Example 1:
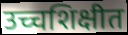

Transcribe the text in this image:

उच्चशिक्षीत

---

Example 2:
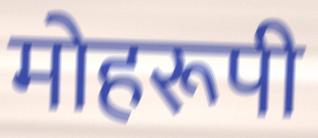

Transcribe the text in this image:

मोहरूपी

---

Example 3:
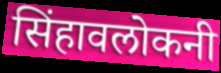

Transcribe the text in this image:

सिंहावलोकनी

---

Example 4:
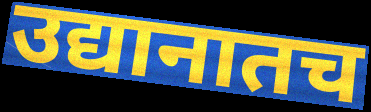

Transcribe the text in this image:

उद्यानातच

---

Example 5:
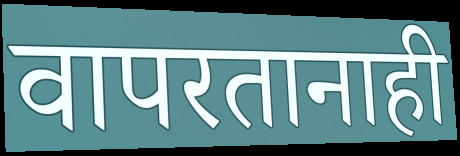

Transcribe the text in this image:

वापरतानाही